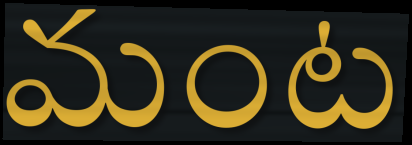
మంట